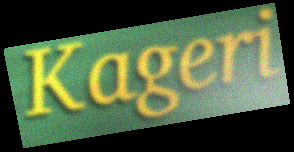
Kageri